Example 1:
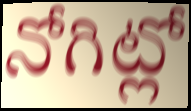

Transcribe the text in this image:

నోగిట్లో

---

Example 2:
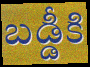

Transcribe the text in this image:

బడ్డీకి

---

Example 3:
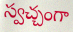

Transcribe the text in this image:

స్వచ్చంగా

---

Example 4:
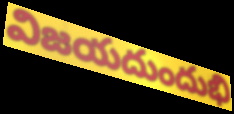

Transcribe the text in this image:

విజయదుందుభి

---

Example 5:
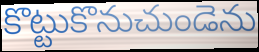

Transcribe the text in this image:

కొట్టుకొనుచుండెను